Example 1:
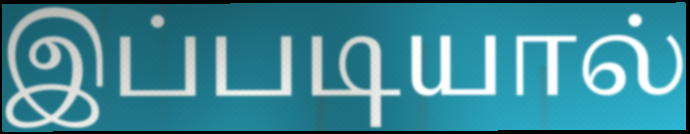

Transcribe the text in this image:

இப்படியால்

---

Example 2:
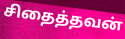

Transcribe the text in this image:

சிதைத்தவன்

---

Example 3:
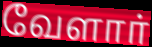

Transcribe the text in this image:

வேளார்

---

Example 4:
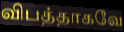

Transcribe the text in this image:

விபத்தாகவே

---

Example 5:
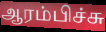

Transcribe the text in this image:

ஆரம்பிச்சு